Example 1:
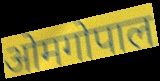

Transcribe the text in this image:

ओमगोपाल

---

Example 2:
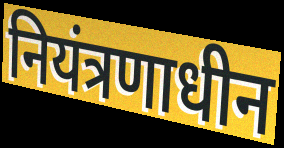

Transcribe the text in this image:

नियंत्रणाधीन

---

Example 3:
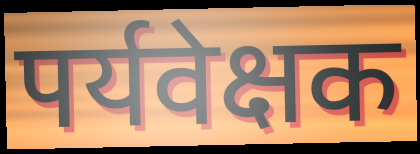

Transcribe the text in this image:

पर्यवेक्षक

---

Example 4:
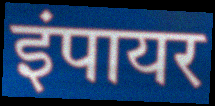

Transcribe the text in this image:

इंपायर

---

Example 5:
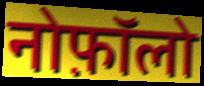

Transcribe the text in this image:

नोफ़ॉलो